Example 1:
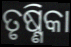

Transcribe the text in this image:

ତୃଷ୍ଣିକା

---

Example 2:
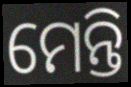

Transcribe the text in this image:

ମେନ୍ତି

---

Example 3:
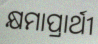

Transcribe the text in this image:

କ୍ଷମାପ୍ରାର୍ଥୀ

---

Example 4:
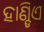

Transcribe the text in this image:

ହାଣ୍ଡିଏ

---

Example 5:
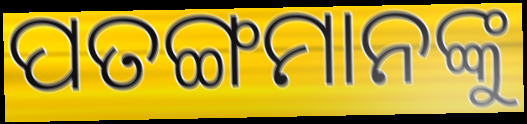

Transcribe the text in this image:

ପତଙ୍ଗମାନଙ୍କୁ